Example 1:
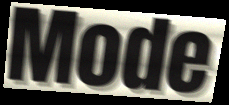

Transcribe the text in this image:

Mode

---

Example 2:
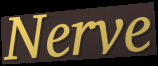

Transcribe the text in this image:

Nerve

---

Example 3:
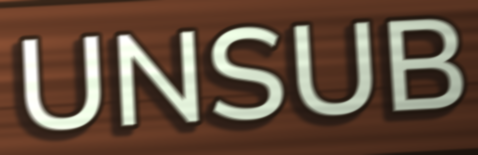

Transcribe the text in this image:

UNSUB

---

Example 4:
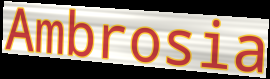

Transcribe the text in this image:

Ambrosia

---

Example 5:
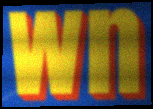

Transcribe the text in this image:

wn